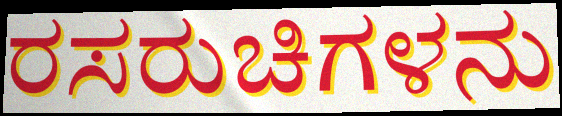
ರಸರುಚಿಗಳನು